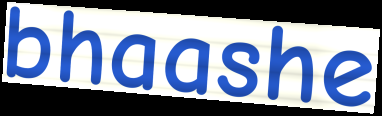
bhaashe